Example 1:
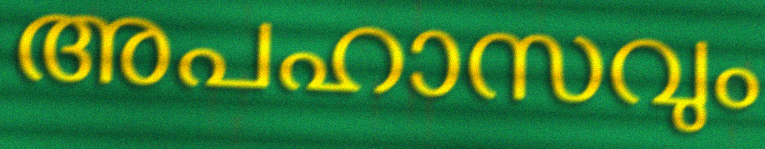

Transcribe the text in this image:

അപഹാസവും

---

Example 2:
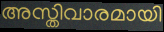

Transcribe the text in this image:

അസ്തിവാരമായി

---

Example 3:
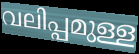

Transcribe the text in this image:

വലിപ്പമുള്ള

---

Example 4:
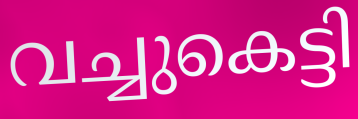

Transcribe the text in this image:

വച്ചുകെട്ടി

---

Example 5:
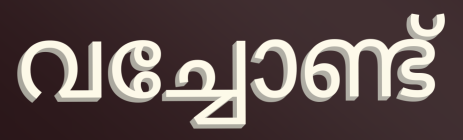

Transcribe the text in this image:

വച്ചോണ്ട്